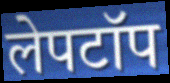
लेपटॉप